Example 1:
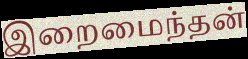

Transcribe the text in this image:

இறைமைந்தன்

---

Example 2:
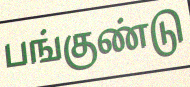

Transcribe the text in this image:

பங்குண்டு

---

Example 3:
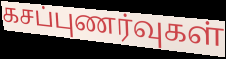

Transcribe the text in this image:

கசப்புணர்வுகள்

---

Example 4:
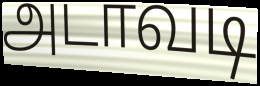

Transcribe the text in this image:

அடாவடி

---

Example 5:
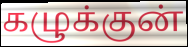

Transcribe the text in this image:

கழுக்குன்